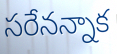
సరేనన్నాక